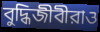
বুদ্ধিজীবীরাও